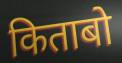
किताबो